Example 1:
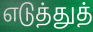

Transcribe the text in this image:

எடுத்துத்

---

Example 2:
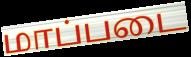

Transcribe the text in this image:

மாப்படை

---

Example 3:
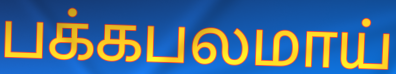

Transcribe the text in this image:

பக்கபலமாய்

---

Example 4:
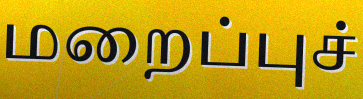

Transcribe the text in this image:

மறைப்புச்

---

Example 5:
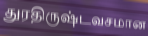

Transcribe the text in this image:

துரதிருஷ்டவசமான